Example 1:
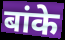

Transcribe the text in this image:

बांके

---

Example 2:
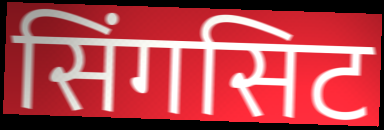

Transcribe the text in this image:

सिंगसिट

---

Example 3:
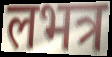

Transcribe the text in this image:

लभत्र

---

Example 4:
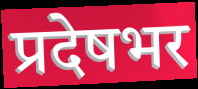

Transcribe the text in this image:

प्रदेषभर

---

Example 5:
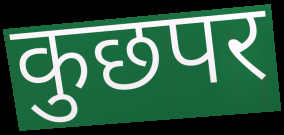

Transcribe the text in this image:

कुछपर